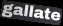
gallate